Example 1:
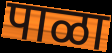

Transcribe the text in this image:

पाळा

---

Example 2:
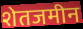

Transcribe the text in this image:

शेतजमीन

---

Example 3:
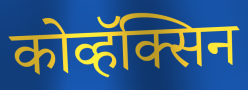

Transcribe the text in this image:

कोव्हॅक्सिन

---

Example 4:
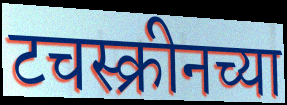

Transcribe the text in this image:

टचस्क्रीनच्या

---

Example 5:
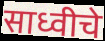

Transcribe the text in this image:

साध्वीचे